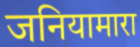
जनियामारा